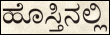
ಹೊಸ್ತಿನಲ್ಲಿ